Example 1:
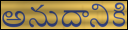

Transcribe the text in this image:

అనుదానికి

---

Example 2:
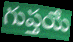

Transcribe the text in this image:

గుప్తయే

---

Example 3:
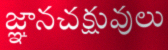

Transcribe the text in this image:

జ్ఞానచక్షువులు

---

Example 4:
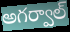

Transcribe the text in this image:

అగర్వాల్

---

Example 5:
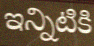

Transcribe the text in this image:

ఇన్నిటికి